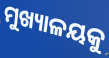
ମୁଖ୍ୟାଳୟକୁ